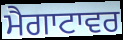
ਮੈਗਾਟਾਵਰ